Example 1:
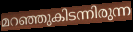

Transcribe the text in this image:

മറഞ്ഞുകിടന്നിരുന്ന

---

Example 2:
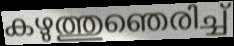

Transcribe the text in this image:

കഴുത്തുഞെരിച്ച്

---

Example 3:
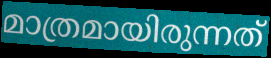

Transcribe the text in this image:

മാത്രമായിരുന്നത്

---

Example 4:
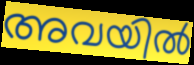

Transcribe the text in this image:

അവയിൽ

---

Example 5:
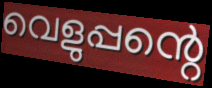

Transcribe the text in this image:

വെളുപ്പന്റെ